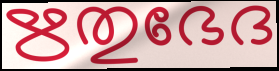
ഋതുഭേദ